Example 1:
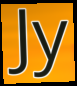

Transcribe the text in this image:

Jy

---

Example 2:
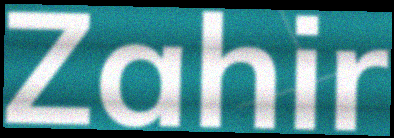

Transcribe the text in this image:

Zahir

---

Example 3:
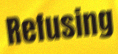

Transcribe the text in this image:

Refusing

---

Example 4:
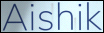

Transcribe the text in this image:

Aishik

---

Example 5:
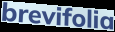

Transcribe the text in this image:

brevifolia